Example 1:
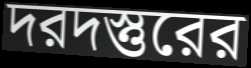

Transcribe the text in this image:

দরদস্তুরের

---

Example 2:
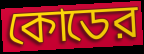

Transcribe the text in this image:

কোডের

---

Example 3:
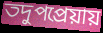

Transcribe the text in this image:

তদুপপ্রেয়ায়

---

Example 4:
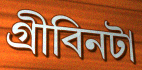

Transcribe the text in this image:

গ্রীবিনটা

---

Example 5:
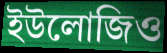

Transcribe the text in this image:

ইউলোজিও